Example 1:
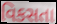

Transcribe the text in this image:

વિકસતા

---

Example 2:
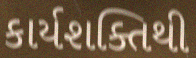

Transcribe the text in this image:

કાર્યશક્તિથી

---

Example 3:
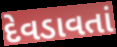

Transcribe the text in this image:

દેવડાવતાં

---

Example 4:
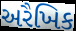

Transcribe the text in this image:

અરૈખિક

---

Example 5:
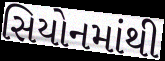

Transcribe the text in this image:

સિયોનમાંથી